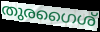
തുരഗൈശ്